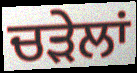
ਚੜੇਲਾਂ